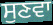
ਸੁਣਵਾ